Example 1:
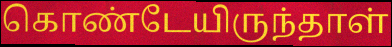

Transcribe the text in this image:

கொண்டேயிருந்தாள்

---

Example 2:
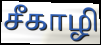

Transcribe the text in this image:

சீகாழி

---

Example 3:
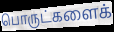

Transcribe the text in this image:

பொருட்களைக்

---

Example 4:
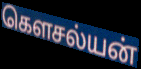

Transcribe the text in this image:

கௌசல்யன்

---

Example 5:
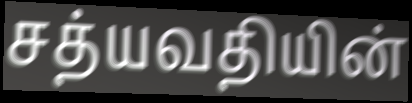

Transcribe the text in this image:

சத்யவதியின்